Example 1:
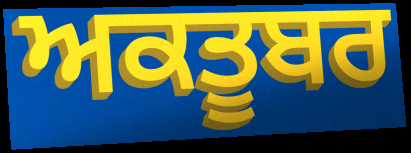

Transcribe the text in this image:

ਅਕਤੂਬਰ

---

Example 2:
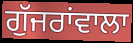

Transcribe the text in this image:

ਗੁੱਜਰਾਂਵਾਲਾ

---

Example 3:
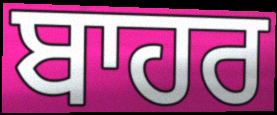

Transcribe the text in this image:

ਬਾਹਰ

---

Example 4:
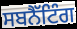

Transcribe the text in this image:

ਸਬਨੈੱਟਿੰਗ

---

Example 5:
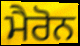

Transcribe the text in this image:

ਮੈਰੋਨ